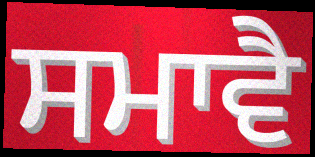
ਸਮਾਵੈ